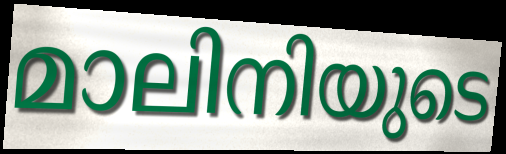
മാലിനിയുടെ